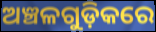
ଅଞ୍ଚଳଗୁଡ଼ିକରେ